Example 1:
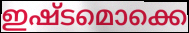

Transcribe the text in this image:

ഇഷ്ടമൊക്കെ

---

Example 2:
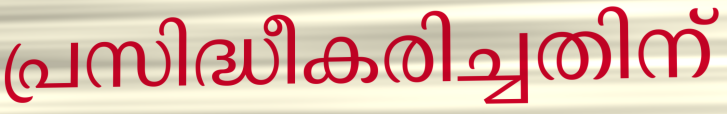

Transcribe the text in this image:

പ്രസിദ്ധീകരിച്ചതിന്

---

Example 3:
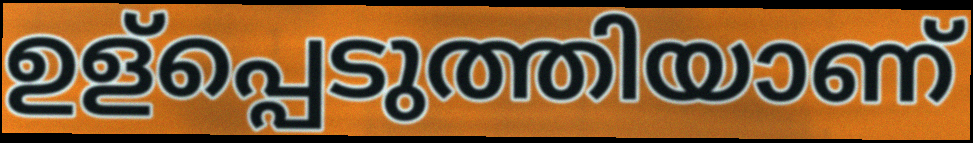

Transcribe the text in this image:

ഉള്പ്പെടുത്തിയാണ്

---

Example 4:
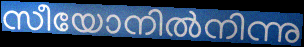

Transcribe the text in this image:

സീയോനിൽനിന്നു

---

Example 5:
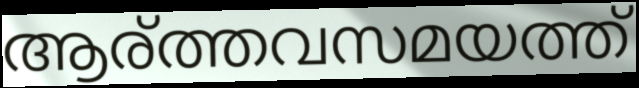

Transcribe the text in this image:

ആര്ത്തവസമയത്ത്